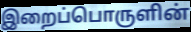
இறைப்பொருளின்